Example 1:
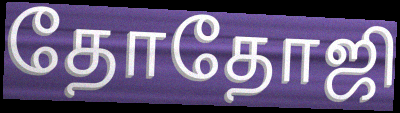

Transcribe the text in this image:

தோதோஜி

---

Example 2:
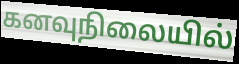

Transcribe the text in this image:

கனவுநிலையில்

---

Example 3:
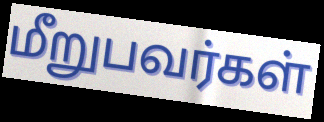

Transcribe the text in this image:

மீறுபவர்கள்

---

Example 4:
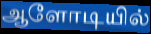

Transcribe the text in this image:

ஆளோடியில்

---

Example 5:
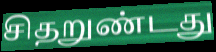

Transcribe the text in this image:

சிதறுண்டது